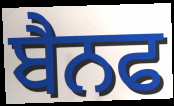
ਬੈਨਫ